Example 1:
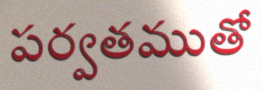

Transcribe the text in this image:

పర్వతముతో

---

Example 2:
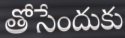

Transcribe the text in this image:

తోసేందుకు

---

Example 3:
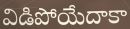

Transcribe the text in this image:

విడిపోయేదాకా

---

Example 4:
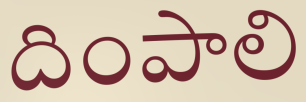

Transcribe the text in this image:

దింపాలి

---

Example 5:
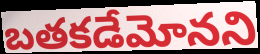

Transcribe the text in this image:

బతకడేమోనని